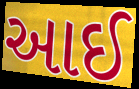
આઈ